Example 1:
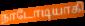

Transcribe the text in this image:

நாடோடியாகி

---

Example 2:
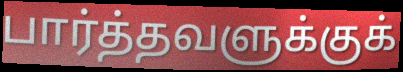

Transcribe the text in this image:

பார்த்தவளுக்குக்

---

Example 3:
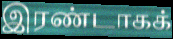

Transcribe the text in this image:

இரண்டாகக்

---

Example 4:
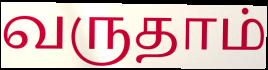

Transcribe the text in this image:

வருதாம்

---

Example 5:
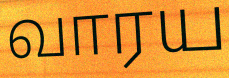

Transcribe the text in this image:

வாரய